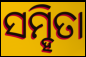
ସମ୍ହିତା